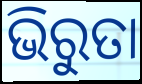
ଭିରୁତା